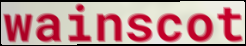
wainscot